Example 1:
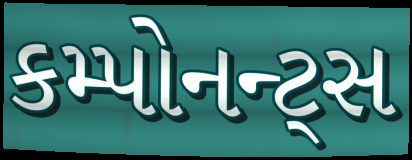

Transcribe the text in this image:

કમ્પોનન્ટ્સ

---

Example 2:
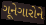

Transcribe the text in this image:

ગૂનેગારોને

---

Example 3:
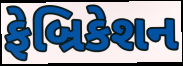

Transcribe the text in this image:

ફેબ્રિકેશન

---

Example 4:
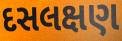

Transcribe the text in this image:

દસલક્ષણ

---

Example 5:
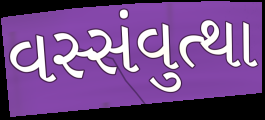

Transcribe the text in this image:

વસ્સંવુત્થા